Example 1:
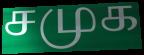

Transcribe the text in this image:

சமுக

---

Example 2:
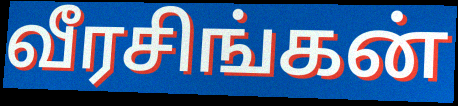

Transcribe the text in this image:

வீரசிங்கன்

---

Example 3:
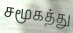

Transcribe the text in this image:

சமூகத்து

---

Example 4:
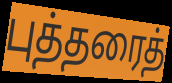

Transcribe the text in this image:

புத்தரைத்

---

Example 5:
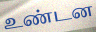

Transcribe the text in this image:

உண்டன